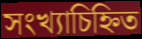
সংখ্যাচিহ্নিত